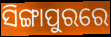
ସିଙ୍ଗାପୁରରେ